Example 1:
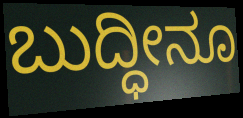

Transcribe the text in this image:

ಬುದ್ಧೀನೂ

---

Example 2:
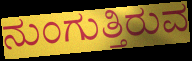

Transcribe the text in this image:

ನುಂಗುತ್ತಿರುವ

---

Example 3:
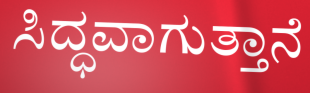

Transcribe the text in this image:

ಸಿದ್ಧವಾಗುತ್ತಾನೆ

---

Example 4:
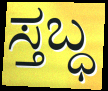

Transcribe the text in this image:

ಸ್ತಬ್ಧ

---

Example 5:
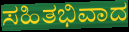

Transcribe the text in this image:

ಸಹಿತಭಿವಾದ